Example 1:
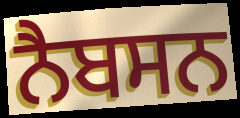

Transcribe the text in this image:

ਨੈਬਸਨ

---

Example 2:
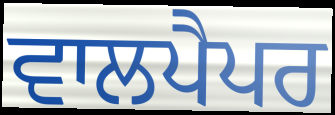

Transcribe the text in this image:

ਵਾਲਪੈਪਰ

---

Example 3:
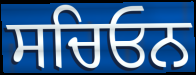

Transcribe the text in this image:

ਸਚਿਓਨ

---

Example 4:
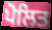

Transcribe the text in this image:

ਪੋਲਿਤ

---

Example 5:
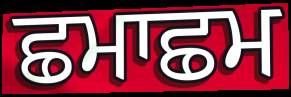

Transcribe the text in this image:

ਛਮਾਛਮ